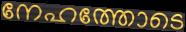
നേഹത്തോടെ